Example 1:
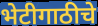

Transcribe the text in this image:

भेटीगाठीचे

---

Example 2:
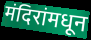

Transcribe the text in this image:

मंदिरांमधून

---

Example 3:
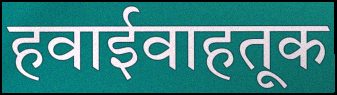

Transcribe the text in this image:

हवाईवाहतूक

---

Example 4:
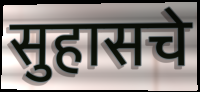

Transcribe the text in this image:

सुहासचे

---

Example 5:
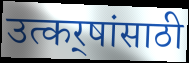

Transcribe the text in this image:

उत्कर्षांसाठी